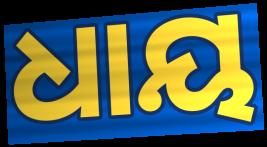
ଧାୟ